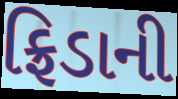
ફ્રિડાની